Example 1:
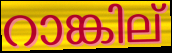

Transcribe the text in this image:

റാങ്കില്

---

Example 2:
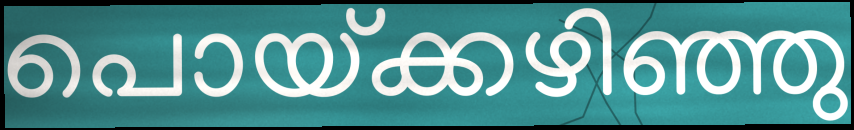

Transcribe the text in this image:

പൊയ്‌ക്കഴിഞ്ഞു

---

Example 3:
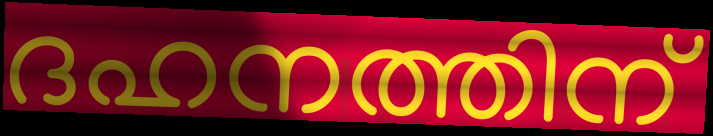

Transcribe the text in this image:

ദഹനത്തിന്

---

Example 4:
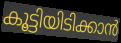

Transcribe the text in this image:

കൂട്ടിയിടിക്കാൻ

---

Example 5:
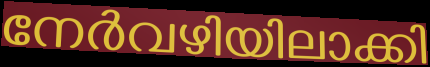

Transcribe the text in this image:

നേർവഴിയിലാക്കി